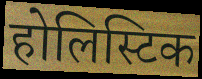
होलिस्टिक